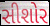
સીશોર